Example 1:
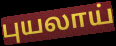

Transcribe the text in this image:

புயலாய்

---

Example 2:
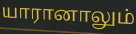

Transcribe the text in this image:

யாரானாலும்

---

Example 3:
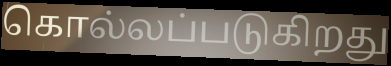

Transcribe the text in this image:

கொல்லப்படுகிறது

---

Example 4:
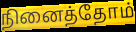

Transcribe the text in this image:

நினைத்தோம்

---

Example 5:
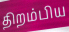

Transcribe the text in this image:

திறம்பிய